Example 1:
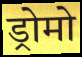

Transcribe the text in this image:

ड्रोमो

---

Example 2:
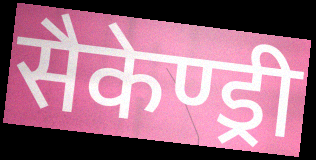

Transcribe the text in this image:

सैकेण्ड्री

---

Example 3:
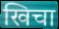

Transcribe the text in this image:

खिचा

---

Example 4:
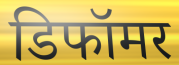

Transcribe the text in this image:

डिफॉमर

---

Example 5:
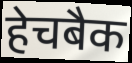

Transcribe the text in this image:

हेचबैक